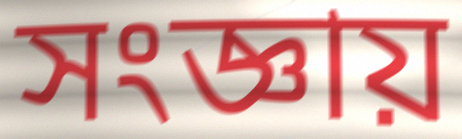
সংজ্ঞায়